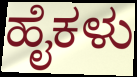
ಹೈಕಳು